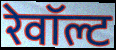
रेवॉल्ट